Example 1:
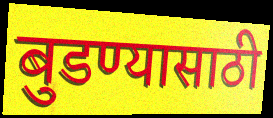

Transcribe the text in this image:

बुडण्यासाठी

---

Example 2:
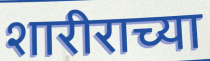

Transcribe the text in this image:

शारीराच्या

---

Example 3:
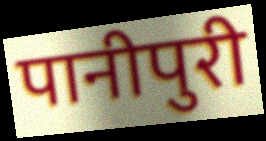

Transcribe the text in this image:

पानीपुरी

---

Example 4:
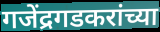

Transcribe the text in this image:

गजेंद्रगडकरांच्या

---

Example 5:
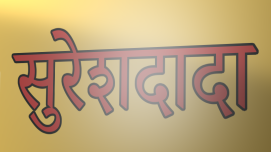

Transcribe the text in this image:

सुरेशदादा